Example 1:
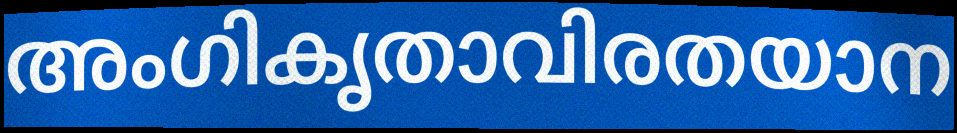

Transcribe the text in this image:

അംഗികൃതാവിരതയാന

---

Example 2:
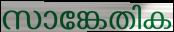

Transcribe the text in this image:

സാങ്കേതിക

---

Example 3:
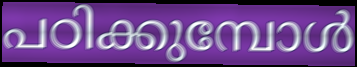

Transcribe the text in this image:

പഠിക്കുമ്പോൾ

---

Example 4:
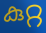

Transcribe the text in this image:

കുറ്റ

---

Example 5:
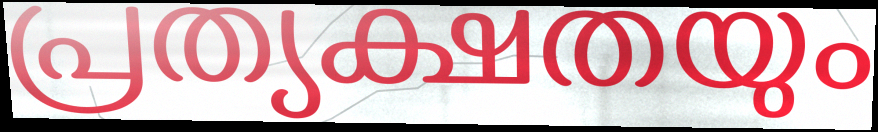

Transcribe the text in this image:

പ്രത്യക്ഷതയും